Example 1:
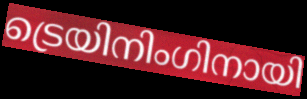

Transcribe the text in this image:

ട്രെയിനിംഗിനായി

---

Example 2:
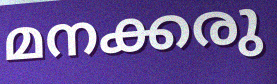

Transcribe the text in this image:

മനക്കരു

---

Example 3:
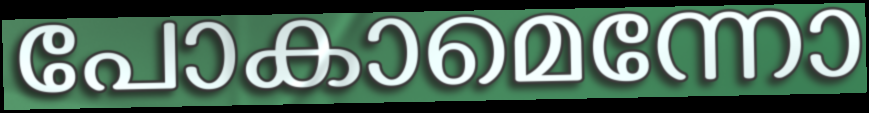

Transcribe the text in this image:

പോകാമെന്നോ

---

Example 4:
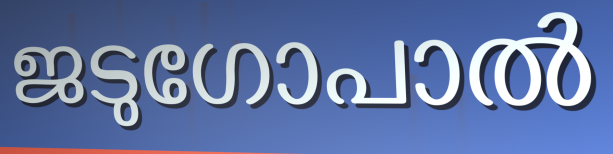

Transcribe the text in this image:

ജടുഗോപാൽ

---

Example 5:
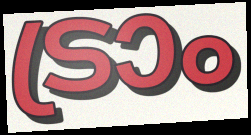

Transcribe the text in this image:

ട്രാം